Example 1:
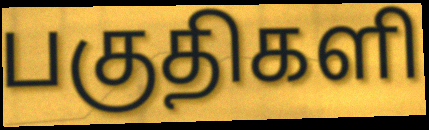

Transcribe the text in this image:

பகுதிகளி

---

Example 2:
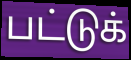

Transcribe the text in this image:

பட்டுக்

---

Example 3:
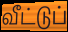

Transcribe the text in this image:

வீட்டுப்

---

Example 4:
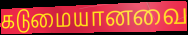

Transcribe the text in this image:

கடுமையானவை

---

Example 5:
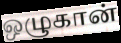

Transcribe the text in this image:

ஒழுகான்